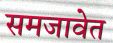
समजावेत